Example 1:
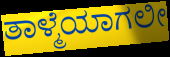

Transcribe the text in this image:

ತಾಳ್ಮೆಯಾಗಲೀ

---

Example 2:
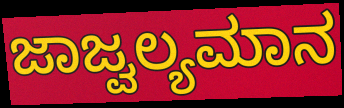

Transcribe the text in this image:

ಜಾಜ್ವಲ್ಯಮಾನ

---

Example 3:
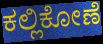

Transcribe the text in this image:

ಕಲ್ಲಿಕೋಣೆ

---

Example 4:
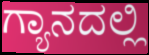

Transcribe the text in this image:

ಗ್ಯಾನದಲ್ಲಿ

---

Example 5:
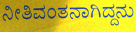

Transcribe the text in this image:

ನೀತಿವಂತನಾಗಿದ್ದನು